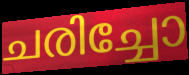
ചരിച്ചോ